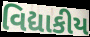
વિદ્યાકીય